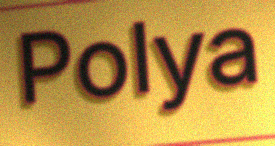
Polya